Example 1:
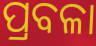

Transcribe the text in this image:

ପ୍ରବଳା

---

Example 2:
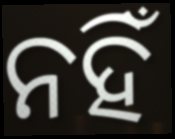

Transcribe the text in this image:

ନହିଁ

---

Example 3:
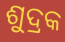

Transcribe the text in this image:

ଶୁଦ୍ରକ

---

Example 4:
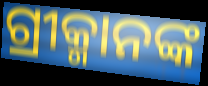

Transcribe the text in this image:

ଗ୍ରୀକ୍ମାନଙ୍କ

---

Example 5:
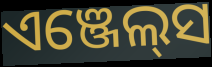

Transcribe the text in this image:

ଏଞ୍ଜେଲ୍‍ସ